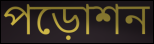
পড়োশন